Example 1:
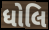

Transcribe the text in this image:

ધોલિ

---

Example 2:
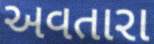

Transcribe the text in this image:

અવતારા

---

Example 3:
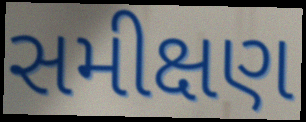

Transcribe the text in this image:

સમીક્ષણ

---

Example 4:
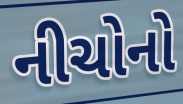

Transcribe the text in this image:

નીચોનો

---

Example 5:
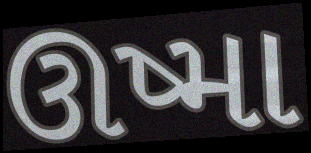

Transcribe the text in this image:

ઊષ્મા